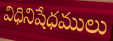
విధినిషేధములు